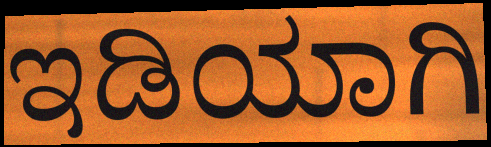
ಇಡಿಯಾಗಿ